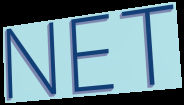
NET